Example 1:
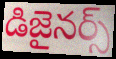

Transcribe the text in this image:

డిజైనర్స్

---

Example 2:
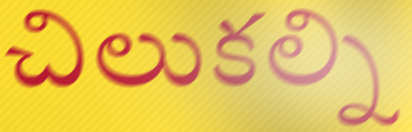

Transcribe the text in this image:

చిలుకల్ని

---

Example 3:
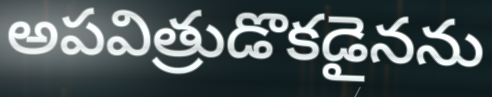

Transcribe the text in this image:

అపవిత్రుడొకడైనను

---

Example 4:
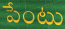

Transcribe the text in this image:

పేంటు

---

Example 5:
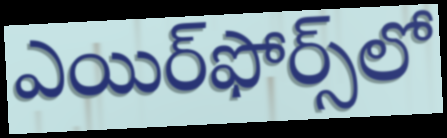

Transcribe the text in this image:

ఎయిర్‌ఫోర్స్‌లో